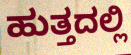
ಹುತ್ತದಲ್ಲಿ